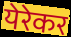
येरेकर